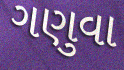
ગણુવા